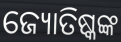
ଜ୍ୟୋତିଷ୍କଙ୍କ